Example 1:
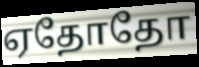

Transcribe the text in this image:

ஏதோதோ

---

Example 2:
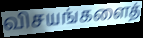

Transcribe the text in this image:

விசயங்களைத்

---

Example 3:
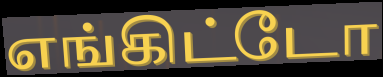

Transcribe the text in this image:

எங்கிட்டோ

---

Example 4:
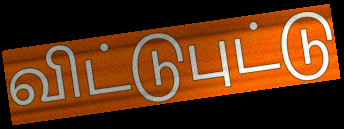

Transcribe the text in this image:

விட்டுபுட்டு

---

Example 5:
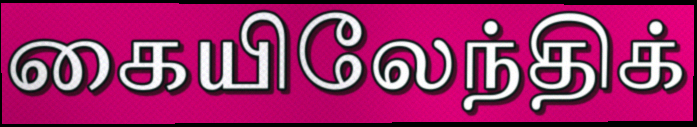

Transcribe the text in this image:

கையிலேந்திக்